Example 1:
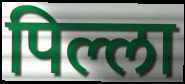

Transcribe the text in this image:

पिल्ला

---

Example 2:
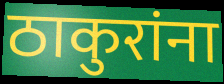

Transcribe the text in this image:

ठाकुरांना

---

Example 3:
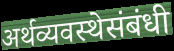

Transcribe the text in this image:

अर्थव्यवस्थेसंबंधी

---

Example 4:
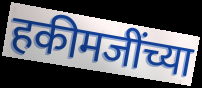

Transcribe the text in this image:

हकीमजींच्या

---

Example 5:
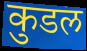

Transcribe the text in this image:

कुडल